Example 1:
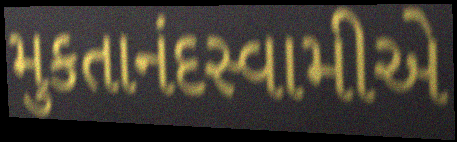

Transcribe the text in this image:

મુકતાનંદસ્વામીએ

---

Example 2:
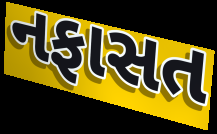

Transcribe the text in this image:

નફાસત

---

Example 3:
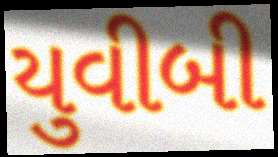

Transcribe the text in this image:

યુવીબી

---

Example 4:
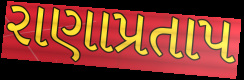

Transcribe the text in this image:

રાણાપ્રતાપ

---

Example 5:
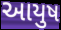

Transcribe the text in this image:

આયુષ